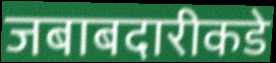
जबाबदारीकडे